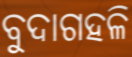
ବୁଦାଗହଳି